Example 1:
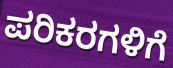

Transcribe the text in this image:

ಪರಿಕರಗಳಿಗೆ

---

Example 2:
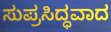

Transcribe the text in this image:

ಸುಪ್ರಸಿದ್ಧವಾದ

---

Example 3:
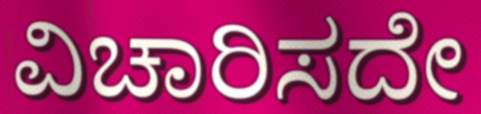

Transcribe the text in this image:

ವಿಚಾರಿಸದೇ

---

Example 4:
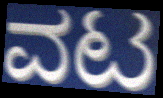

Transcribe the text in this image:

ವಟ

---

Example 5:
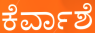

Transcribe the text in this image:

ಕೆರ್ವಾಶೆ